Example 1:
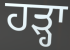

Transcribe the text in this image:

ਹੜ੍ਹਾ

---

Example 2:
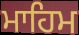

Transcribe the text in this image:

ਮਾਹਿਮ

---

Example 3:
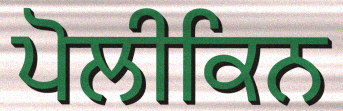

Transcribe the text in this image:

ਪੋਲੀਕਿਨ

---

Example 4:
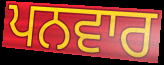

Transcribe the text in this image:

ਪਨਵਾਰ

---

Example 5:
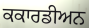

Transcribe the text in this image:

ਕਕਾਰਡੀਅਨ